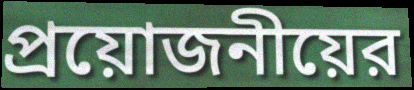
প্রয়োজনীয়ের